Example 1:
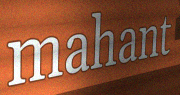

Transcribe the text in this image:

mahant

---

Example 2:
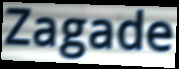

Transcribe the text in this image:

Zagade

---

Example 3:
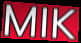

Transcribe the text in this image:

MIK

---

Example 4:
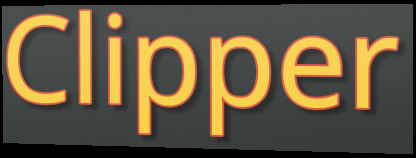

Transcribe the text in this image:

Clipper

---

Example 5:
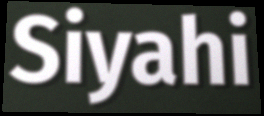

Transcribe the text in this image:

Siyahi